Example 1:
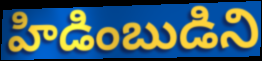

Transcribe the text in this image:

హిడింబుడిని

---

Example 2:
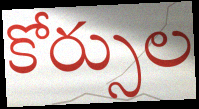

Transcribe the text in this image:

కోర్సుల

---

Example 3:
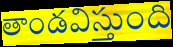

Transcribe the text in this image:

తాండవిస్తుంది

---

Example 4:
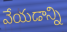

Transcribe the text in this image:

వేయడాన్ని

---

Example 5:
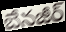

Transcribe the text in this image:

బేనజీర్